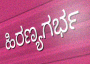
ಹಿರಣ್ಯಗರ್ಭ